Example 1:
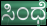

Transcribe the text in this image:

ಸಿಂಧೆ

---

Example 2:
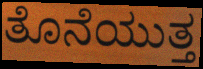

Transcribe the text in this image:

ತೊನೆಯುತ್ತ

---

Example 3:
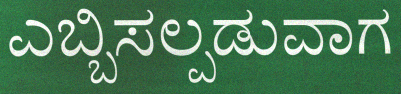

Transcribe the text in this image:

ಎಬ್ಬಿಸಲ್ಪಡುವಾಗ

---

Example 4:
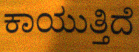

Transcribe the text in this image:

ಕಾಯುತ್ತಿದೆ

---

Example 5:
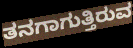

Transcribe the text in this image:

ತನಗಾಗುತ್ತಿರುವ